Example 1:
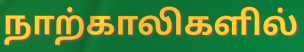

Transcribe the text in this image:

நாற்காலிகளில்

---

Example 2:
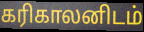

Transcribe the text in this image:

கரிகாலனிடம்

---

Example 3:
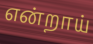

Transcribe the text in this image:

என்றாய்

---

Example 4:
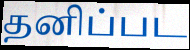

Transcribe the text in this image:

தனிப்பட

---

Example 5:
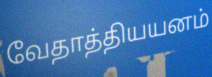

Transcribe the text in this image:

வேதாத்தியயனம்